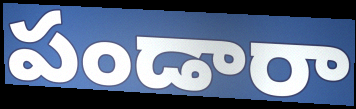
పండారా